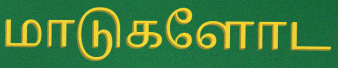
மாடுகளோட